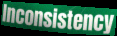
Inconsistency